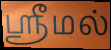
ஶ்ரீமல்